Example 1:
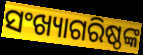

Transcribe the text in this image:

ସଂଖ୍ୟାଗରିଷ୍ଠଙ୍କ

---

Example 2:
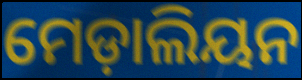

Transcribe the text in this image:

ମେଡ଼ାଲିୟନ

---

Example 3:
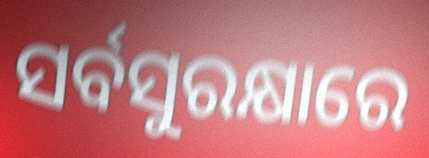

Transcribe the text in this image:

ସର୍ବସୁରକ୍ଷାରେ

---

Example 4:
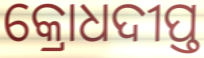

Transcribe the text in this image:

କ୍ରୋଧଦୀପ୍ତ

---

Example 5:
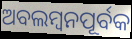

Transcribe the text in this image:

ଅବଲମ୍ୱନପୂର୍ବକ